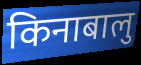
किनाबालु